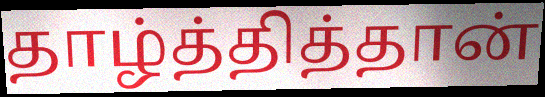
தாழ்த்தித்தான்